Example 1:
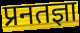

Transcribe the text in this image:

प्रनतज्ञा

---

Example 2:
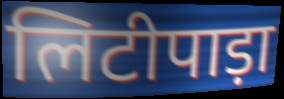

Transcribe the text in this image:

लिटीपाड़ा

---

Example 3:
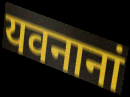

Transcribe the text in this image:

यवनानां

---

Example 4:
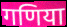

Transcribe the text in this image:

गणिया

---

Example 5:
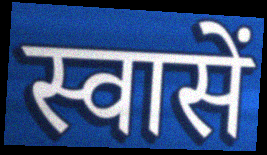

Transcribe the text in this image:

स्वासें